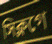
সিক্লগে